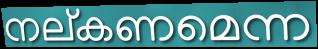
നല്കണമെന്ന